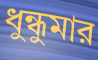
ধুন্ধুমার